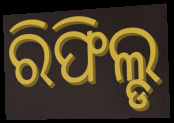
ରିଫିଲ୍ଡ